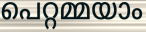
പെറ്റമ്മയാം